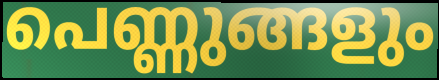
പെണ്ണുങ്ങളും